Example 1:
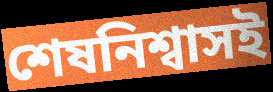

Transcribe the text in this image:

শেষনিশ্বাসই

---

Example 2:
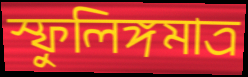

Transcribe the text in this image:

স্ফুলিঙ্গমাত্র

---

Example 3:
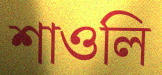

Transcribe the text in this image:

শাওলি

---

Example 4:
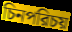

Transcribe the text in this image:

চিনপরিচয়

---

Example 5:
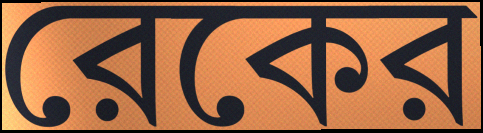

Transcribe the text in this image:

রেকের